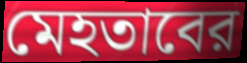
মেহতাবের